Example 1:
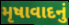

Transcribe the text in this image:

મૃષાવાદનું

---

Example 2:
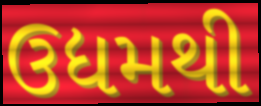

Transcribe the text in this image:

ઉદ્યમથી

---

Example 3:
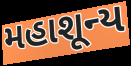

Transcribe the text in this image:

મહાશૂન્ય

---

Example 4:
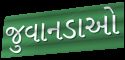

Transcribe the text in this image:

જુવાનડાઓ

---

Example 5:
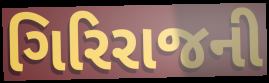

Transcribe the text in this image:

ગિરિરાજની